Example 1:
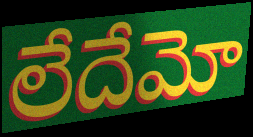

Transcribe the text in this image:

లేదేమో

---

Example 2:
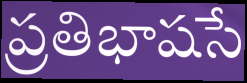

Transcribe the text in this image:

ప్రతిభాషసే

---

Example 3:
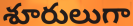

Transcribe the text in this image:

శూరులుగా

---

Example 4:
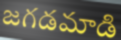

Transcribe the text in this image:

జగడమాడి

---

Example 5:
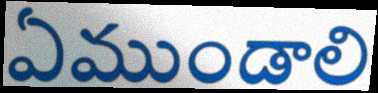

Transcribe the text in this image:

ఏముండాలి